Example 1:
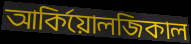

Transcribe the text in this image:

আর্কিয়োলজিকাল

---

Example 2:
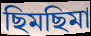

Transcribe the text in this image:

ছিমছিমা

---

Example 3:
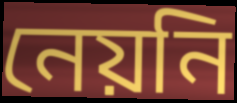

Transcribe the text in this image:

নেয়নি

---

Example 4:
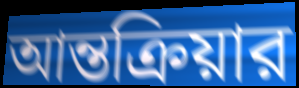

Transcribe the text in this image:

আন্তক্রিয়ার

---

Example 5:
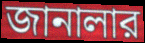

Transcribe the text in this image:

জানালার